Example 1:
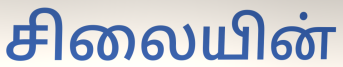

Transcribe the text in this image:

சிலையின்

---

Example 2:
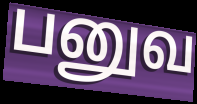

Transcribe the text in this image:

பனுவ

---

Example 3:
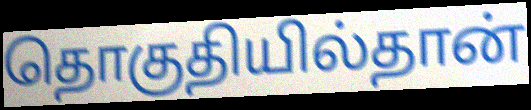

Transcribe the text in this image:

தொகுதியில்தான்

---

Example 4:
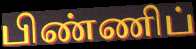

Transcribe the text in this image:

பிண்ணிப்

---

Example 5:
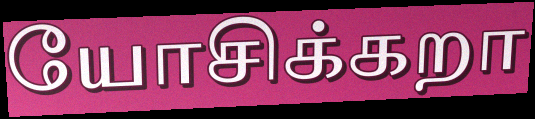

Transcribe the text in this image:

யோசிக்கறா